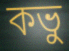
কভু